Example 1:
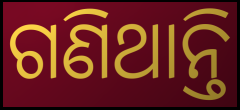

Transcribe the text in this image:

ଗଣିଥାନ୍ତି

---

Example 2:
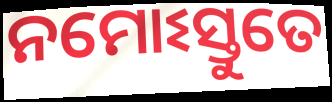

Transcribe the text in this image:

ନମୋଽସ୍ତୁତେ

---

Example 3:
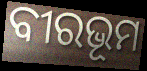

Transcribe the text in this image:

ବୀରଭୂମ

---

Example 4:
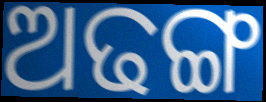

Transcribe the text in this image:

ଅଢଙ୍ଗ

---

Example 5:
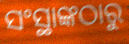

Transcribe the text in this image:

ସଂସ୍ଥାଙ୍କଠାରୁ